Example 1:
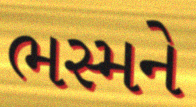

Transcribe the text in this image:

ભસ્મને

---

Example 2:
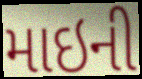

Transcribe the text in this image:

માઇની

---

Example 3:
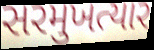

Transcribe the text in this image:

સરમુખત્યાર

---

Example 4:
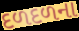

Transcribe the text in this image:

દળદળના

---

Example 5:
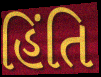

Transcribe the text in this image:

હિંતિ